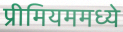
प्रीमियममध्ये